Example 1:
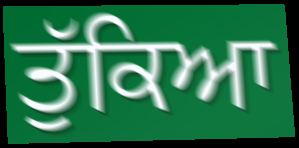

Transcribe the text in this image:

ਤੁੱਕਿਆ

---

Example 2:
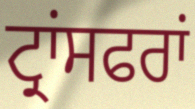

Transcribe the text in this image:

ਟ੍ਰਾਂਸਫਰਾਂ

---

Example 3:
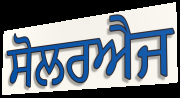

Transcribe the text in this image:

ਸੋਲਰਐਜ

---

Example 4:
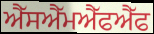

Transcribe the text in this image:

ਐੱਸਐੱਮਐੱਫਐੱਫ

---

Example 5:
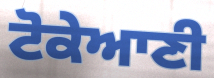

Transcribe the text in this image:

ਟੋਕੇਆਣੀ